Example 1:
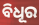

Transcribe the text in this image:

ବିଧୂର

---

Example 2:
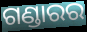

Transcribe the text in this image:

ଗଣ୍ଡାରର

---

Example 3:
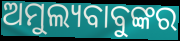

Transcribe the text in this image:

ଅମୁଲ୍ୟବାବୁଙ୍କର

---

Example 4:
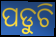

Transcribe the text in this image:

ପଡୁଚି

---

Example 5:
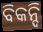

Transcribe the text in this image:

ବିକନ୍ଦି